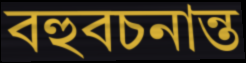
বহুবচনান্ত